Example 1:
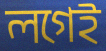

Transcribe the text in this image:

লগেই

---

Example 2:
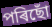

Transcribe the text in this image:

পৰিছোঁ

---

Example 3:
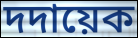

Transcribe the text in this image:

দদায়েক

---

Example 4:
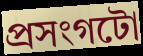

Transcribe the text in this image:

প্ৰসংগটো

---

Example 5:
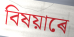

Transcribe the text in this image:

বিষয়াৰে